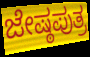
ಜೇಷ್ಠಪುತ್ರ